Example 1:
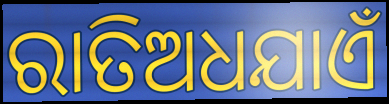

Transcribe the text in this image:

ରାତିଅଧଯାଏଁ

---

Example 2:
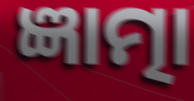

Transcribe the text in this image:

ଜ୍ଞାତ୍ମା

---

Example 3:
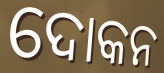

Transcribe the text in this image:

ଦୋକନ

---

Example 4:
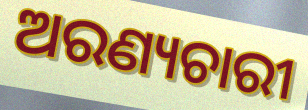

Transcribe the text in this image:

ଅରଣ୍ୟଚାରୀ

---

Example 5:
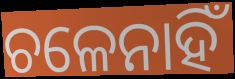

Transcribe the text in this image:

ଚଳେନାହିଁ